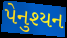
પેનુશ્યન